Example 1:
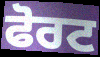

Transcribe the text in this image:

ਫੋਰਟ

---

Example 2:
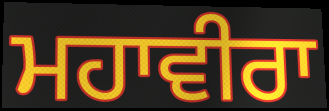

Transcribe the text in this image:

ਮਹਾਵੀਰਾ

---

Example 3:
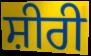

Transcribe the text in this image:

ਸ਼ੀਰੀ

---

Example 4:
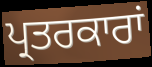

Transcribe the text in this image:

ਪ੍ਰਤਰਕਾਰਾਂ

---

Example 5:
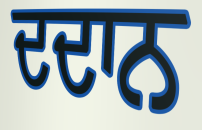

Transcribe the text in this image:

ਦਦਾਨ